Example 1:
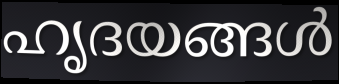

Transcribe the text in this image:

ഹൃദയങ്ങൾ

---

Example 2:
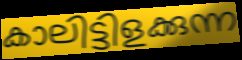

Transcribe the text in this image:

കാലിട്ടിളക്കുന്ന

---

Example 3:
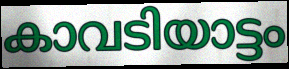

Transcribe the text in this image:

കാവടിയാട്ടം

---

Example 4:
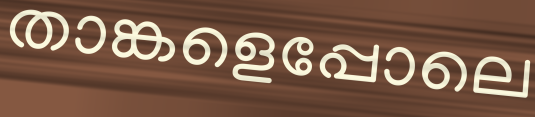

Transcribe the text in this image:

താങ്കളെപ്പോലെ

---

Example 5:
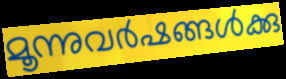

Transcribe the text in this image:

മൂന്നുവർഷങ്ങൾക്കു